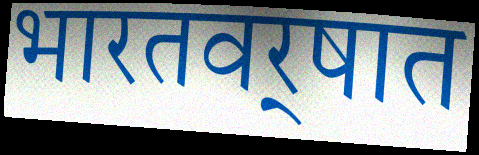
भारतवर्षात